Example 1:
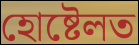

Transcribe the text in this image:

হোষ্টেলত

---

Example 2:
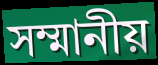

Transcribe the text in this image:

সম্মানীয়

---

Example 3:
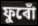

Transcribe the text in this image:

ফুৰোঁ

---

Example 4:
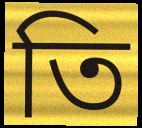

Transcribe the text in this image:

তি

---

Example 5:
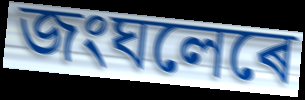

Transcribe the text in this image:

জংঘলেৰে